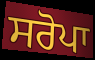
ਸਰੋਪਾ